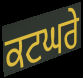
ਕਟਘਰੇ